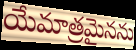
యేమాత్రమైనను